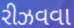
રીઝવવા